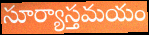
సూర్యాస్తమయం